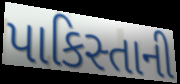
પાકિસ્તાની